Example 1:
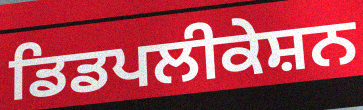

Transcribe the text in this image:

ਡਿਡਪਲੀਕੇਸ਼ਨ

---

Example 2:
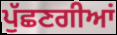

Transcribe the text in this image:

ਪੁੱਛਣਗੀਆਂ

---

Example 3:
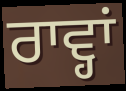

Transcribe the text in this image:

ਰਾਵ੍ਹਾਂ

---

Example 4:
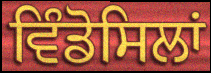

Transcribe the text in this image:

ਵਿੰਡੋਸਿਲਾਂ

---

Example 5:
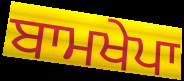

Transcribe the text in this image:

ਬਾਮਖੇਪਾ